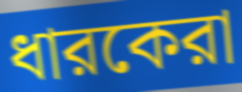
ধারকেরা